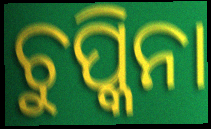
ଚୁପ୍କିନା